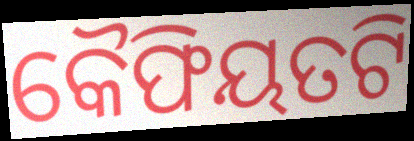
କୈଫିୟତଟି